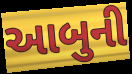
આબુની